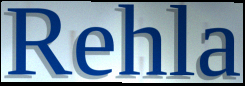
Rehla